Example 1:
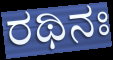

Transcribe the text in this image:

ರಥಿನಃ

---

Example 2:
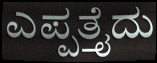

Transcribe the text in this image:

ಎಪ್ಪತ್ತೈದು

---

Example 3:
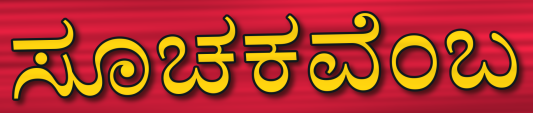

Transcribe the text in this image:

ಸೂಚಕವೆಂಬ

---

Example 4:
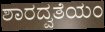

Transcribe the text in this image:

ಶಾರದ್ವತೆಯಂ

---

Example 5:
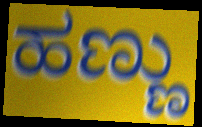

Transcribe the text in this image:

ಹಣ್ಣು